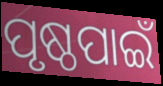
ପୃଷ୍ଠପାଇଁ